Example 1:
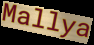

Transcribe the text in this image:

Mallya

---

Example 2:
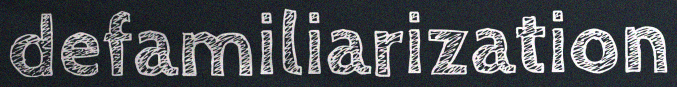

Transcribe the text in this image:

defamiliarization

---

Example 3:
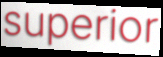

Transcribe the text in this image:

superior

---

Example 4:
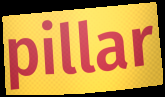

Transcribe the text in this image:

pillar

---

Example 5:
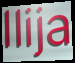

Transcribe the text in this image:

Ilija